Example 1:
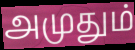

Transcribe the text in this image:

அமுதும்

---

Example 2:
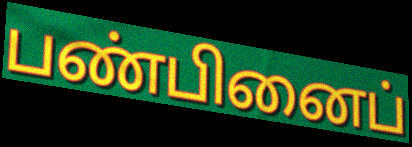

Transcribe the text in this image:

பண்பினைப்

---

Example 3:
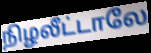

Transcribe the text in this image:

நிழலீட்டாலே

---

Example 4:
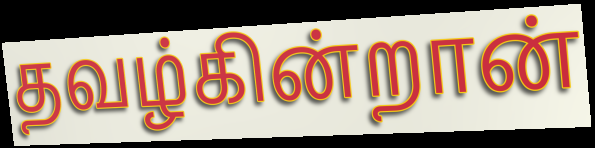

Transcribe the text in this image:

தவழ்கின்றான்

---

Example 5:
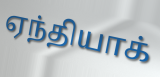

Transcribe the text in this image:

ஏந்தியாக்